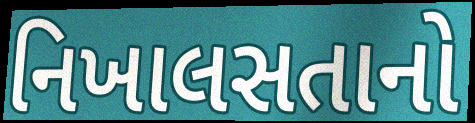
નિખાલસતાનો